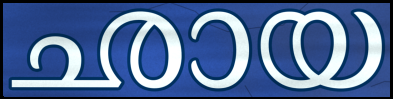
ഛായ